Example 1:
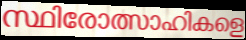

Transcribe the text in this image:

സ്ഥിരോത്സാഹികളെ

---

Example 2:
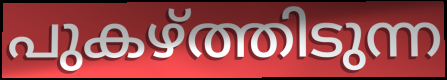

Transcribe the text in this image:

പുകഴ്ത്തിടുന്ന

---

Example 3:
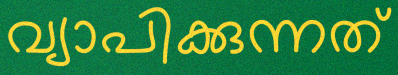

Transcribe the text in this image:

വ്യാപിക്കുന്നത്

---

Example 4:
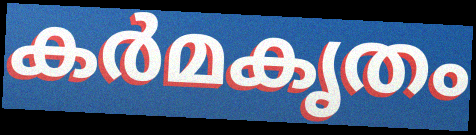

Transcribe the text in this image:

കർമകൃതം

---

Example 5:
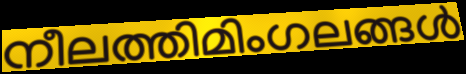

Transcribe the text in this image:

നീലത്തിമിംഗലങ്ങൾ